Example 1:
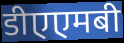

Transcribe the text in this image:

डीएएमबी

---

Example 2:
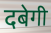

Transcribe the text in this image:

दबेगी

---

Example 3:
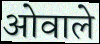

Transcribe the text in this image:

ओवाले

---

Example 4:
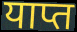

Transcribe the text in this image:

याप्त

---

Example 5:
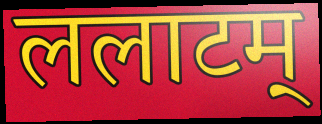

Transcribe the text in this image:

ललाटम्